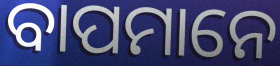
ବାପମାନେ